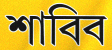
শাবিব